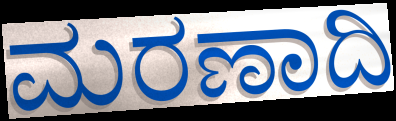
ಮರಣಾದಿ